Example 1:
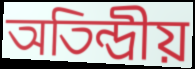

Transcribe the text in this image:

অতিন্দ্রীয়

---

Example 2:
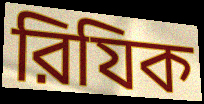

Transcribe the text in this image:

রিযিক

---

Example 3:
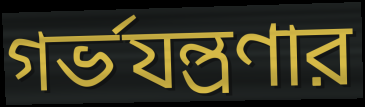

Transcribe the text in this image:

গর্ভযন্ত্রণার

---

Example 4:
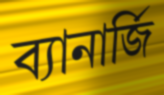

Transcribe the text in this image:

ব্যানার্জি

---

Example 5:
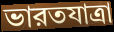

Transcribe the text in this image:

ভারতযাত্রা